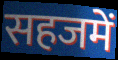
सहजमें